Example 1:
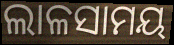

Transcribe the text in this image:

ଲାଳସାମୟ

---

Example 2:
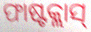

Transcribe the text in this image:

ଫାଷ୍ଟକ୍ଲାସ୍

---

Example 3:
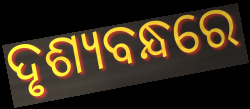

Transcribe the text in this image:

ଦୃଶ୍ୟବନ୍ଧରେ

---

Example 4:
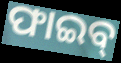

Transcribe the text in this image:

ଫାଇବ୍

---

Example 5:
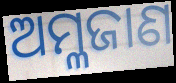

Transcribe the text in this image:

ଅମ୍ଳଜାଣ